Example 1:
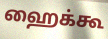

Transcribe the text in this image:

ஹைக்கூ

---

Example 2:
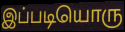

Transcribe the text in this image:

இப்படியொரு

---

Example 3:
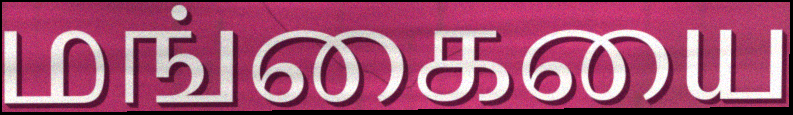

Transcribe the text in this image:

மங்கையை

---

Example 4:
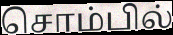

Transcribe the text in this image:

சொம்பில்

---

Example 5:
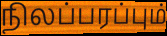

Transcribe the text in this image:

நிலப்பரப்பும்